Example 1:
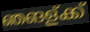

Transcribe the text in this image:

ഞങള്ക്ക്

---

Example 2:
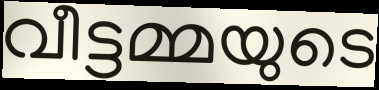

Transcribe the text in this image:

വീട്ടമ്മയുടെ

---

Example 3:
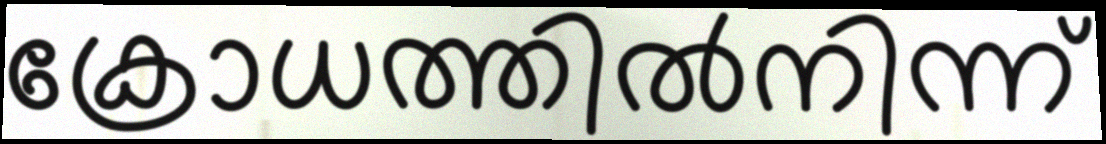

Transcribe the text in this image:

ക്രോധത്തിൽനിന്ന്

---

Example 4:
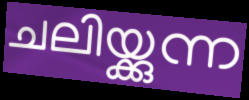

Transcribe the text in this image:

ചലിയ്ക്കുന്ന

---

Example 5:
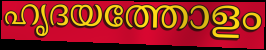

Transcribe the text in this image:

ഹൃദയത്തോളം